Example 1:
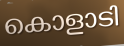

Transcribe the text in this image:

കൊളാടി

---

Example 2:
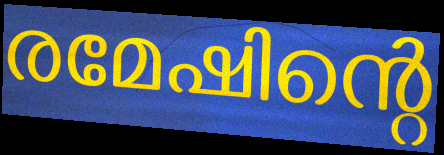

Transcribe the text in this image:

രമേഷിന്റെ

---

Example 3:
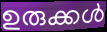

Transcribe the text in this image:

ഉരുക്കൾ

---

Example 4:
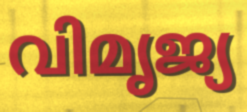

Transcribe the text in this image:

വിമൃജ്യ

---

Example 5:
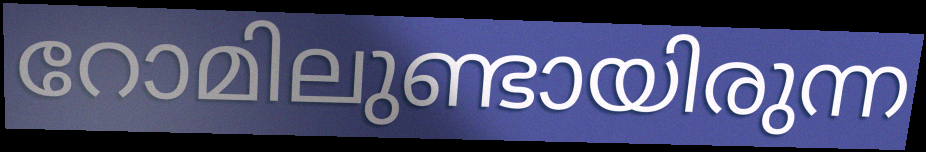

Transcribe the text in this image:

റോമിലുണ്ടായിരുന്ന